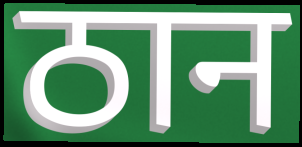
ठान